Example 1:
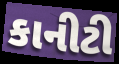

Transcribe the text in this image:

કાનીટી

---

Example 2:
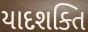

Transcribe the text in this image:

યાદશક્તિ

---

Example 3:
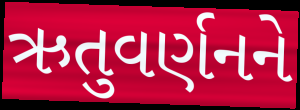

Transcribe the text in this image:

ઋતુવર્ણનને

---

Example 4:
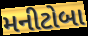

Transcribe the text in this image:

મનીટોબા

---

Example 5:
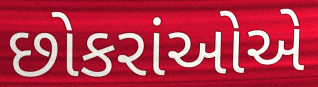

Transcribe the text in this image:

છોકરાંઓએ